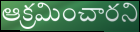
ఆక్రమించారని